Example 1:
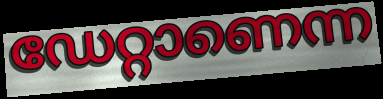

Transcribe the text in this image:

ഡേറ്റാണെന്ന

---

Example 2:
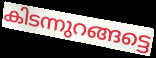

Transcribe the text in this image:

കിടന്നുറങ്ങട്ടെ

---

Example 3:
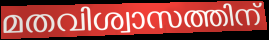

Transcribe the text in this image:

മതവിശ്വാസത്തിന്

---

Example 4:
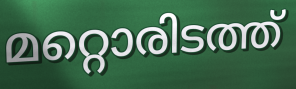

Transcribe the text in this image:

മറ്റൊരിടത്ത്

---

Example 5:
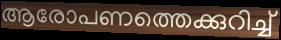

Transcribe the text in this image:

ആരോപണത്തെക്കുറിച്ച്